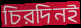
চিরদিনই